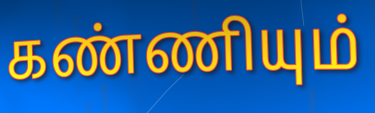
கண்ணியும்